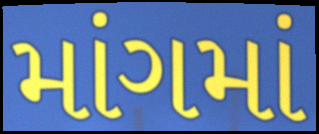
માંગમાં